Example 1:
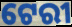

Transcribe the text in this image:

ଟେରୀ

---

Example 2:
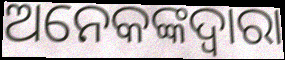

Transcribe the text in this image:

ଅନେକଙ୍କଦ୍ୱାରା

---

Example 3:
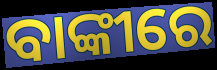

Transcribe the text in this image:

ବାଙ୍କୀରେ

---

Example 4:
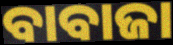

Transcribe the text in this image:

ବାବାଜା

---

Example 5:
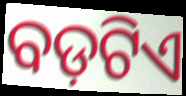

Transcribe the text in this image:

ବଡ଼ଟିଏ